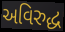
અવિરુદ્ધ